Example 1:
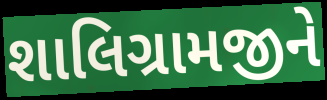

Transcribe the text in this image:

શાલિગ્રામજીને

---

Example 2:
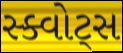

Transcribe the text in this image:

સ્ક્વોટ્સ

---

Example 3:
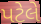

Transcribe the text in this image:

પટેલે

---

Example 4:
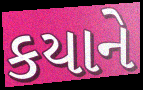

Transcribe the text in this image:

કયાને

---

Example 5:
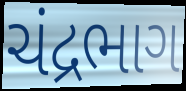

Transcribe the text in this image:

ચંદ્રભાગ